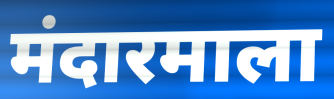
मंदारमाला